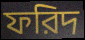
ফরিদ